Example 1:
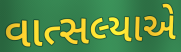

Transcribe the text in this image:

વાત્સલ્યાએ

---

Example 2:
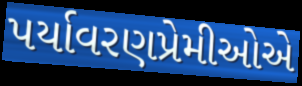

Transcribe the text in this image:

પર્યાવરણપ્રેમીઓએ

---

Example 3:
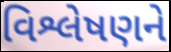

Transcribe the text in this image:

વિશ્લેષણને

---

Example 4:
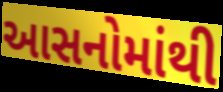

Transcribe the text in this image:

આસનોમાંથી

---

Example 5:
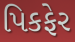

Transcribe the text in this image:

પિકફેર